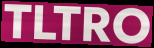
TLTRO